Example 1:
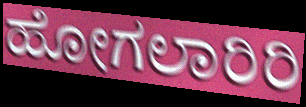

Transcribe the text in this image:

ಹೋಗಲಾರಿರಿ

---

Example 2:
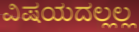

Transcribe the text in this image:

ವಿಷಯದಲ್ಲಲ್ಲ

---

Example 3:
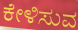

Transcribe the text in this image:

ಕೇಳಿಸುವ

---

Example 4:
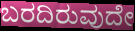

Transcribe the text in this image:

ಬರದಿರುವುದೇ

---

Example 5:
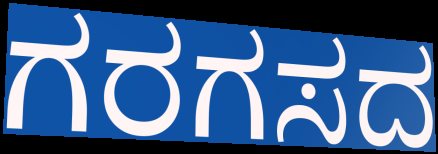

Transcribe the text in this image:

ಗರಗಸದ